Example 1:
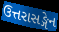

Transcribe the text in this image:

ઉત્તરાસઙ્ગેન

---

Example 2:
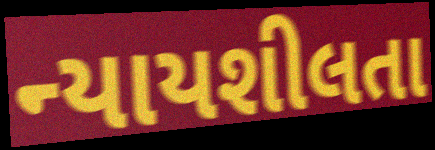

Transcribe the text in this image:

ન્યાયશીલતા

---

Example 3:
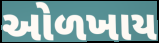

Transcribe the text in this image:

ઓળખાય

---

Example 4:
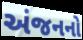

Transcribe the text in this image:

અંજનનો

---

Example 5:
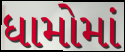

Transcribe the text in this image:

ધામોમાં